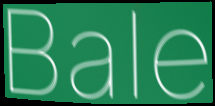
Bale